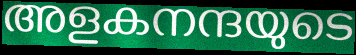
അളകനന്ദയുടെ